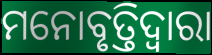
ମନୋବୃତ୍ତିଦ୍ଵାରା